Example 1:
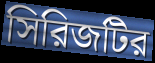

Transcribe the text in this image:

সিরিজটির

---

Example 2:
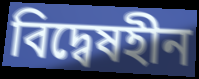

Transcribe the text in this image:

বিদ্বেষহীন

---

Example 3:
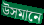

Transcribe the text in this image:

উসমানে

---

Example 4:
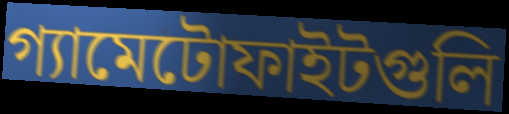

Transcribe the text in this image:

গ্যামেটোফাইটগুলি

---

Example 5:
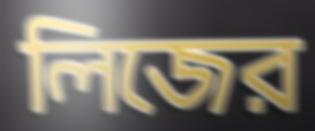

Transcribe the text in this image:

লিজের